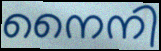
നൈനി